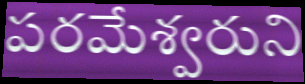
పరమేశ్వరుని